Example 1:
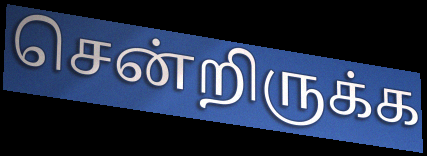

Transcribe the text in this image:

சென்றிருக்க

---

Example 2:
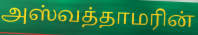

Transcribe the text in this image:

அஸ்வத்தாமரின்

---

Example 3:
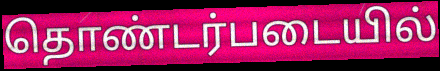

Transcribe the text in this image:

தொண்டர்படையில்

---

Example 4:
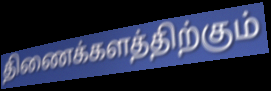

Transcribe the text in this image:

திணைக்களத்திற்கும்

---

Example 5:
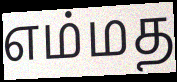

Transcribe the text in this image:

எம்மத